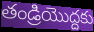
తండ్రియొద్దకు